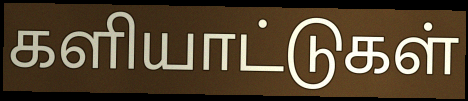
களியாட்டுகள்